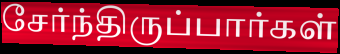
சேர்ந்திருப்பார்கள்